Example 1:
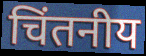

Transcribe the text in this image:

चिंतनीय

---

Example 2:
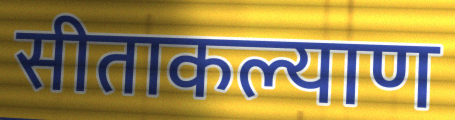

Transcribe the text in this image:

सीताकल्याण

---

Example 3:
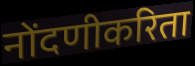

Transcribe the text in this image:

नोंदणीकरिता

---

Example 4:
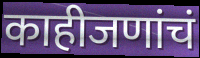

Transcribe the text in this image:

काहीजणांचं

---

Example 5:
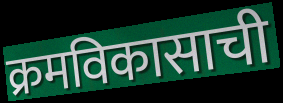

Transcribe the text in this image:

क्रमविकासाची